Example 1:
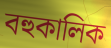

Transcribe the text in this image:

বহুকালিক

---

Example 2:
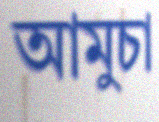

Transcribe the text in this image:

আমুচা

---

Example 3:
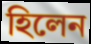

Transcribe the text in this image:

হিলেন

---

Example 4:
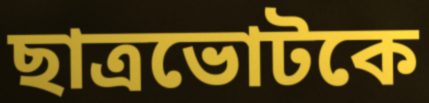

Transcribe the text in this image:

ছাত্রভোটকে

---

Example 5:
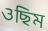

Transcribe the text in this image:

ওছিম